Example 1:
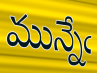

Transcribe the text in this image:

మున్నేఁ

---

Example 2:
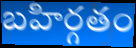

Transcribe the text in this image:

బహిర్గతం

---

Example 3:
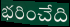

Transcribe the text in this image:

భరించేది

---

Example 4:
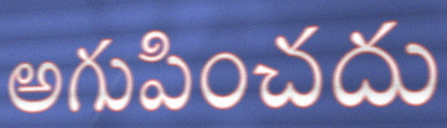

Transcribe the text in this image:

అగుపించదు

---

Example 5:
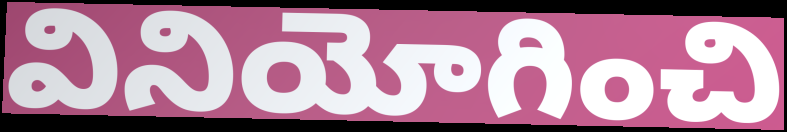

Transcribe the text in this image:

వినియోగించి